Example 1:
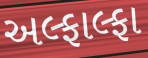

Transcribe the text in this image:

અલ્ફાલ્ફા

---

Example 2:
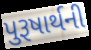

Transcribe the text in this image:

પુરૂષાર્થની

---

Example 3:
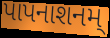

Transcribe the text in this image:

પાપનાશનમ્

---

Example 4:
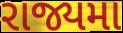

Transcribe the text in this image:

રાજ્યમા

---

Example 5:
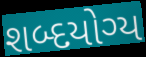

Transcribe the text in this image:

શબ્દયોગ્ય